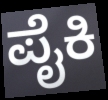
ಪೈಕಿ